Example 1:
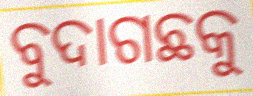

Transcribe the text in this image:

ବୁଦାଗଛକୁ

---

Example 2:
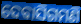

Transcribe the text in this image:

ଦେବାସିଗମଣି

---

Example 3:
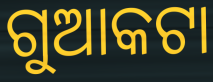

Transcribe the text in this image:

ଗୁଆକଟା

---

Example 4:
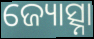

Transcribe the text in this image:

ଜ୍ୟୋତ୍ସ୍ନା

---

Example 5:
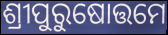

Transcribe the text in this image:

ଶ୍ରୀପୁରୁଷୋତ୍ତମେ